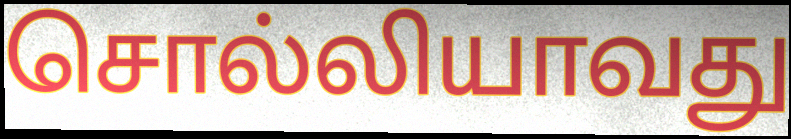
சொல்லியாவது